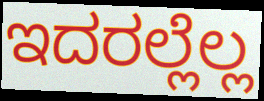
ಇದರಲ್ಲೆಲ್ಲ